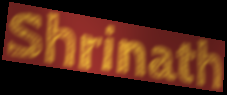
Shrinath